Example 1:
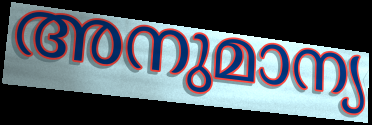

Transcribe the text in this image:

അനുമാന്യ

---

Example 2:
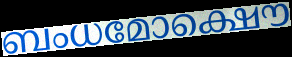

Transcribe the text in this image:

ബംധമോക്ഷൌ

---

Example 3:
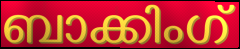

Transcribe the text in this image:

ബാക്കിംഗ്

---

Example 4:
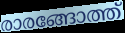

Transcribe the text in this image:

രാരങ്ങോത്ത്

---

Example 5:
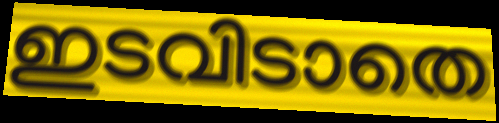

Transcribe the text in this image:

ഇടവിടാതെ